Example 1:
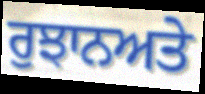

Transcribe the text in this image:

ਰੁਝਾਨਅਤੇ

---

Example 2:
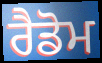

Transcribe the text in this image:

ਰੈਡੋਮ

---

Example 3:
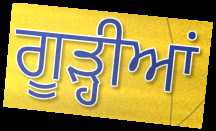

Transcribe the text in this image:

ਗੂੜ੍ਹੀਆਂ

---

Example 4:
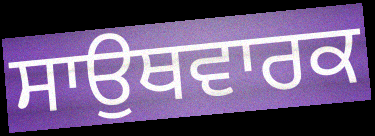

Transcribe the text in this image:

ਸਾਉਥਵਾਰਕ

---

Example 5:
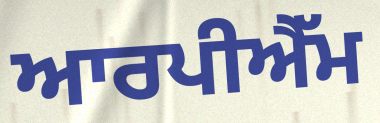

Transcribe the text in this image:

ਆਰਪੀਐੱਮ